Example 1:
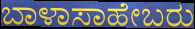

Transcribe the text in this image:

ಬಾಳಾಸಾಹೇಬರು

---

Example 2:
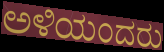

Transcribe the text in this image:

ಅಳಿಯಂದರು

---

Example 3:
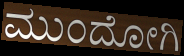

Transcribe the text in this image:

ಮುಂದೋಗಿ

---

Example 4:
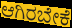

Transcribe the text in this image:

ಆಗಿರಬೇಕೆ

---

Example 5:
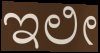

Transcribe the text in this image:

ಇಲೀ